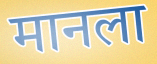
मानला